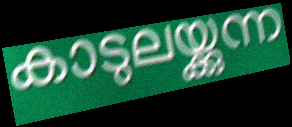
കാടുലയ്ക്കുന്ന